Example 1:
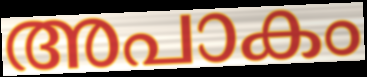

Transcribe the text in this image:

അപാകം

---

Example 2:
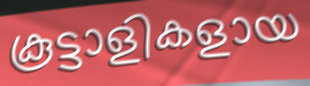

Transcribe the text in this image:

കൂട്ടാളികളായ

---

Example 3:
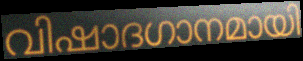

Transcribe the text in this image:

വിഷാദഗാനമായി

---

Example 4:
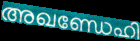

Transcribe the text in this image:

അഖണ്ഡേഹി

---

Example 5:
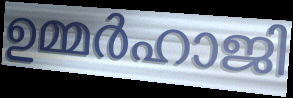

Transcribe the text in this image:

ഉമ്മർഹാജി